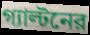
গ্যাল্টনের